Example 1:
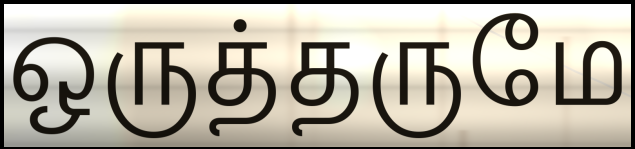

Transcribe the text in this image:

ஒருத்தருமே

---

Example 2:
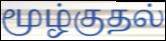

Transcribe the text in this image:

மூழ்குதல்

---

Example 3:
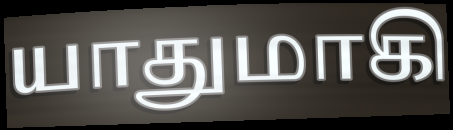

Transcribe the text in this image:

யாதுமாகி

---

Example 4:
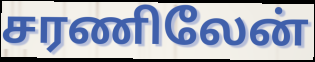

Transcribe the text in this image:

சரணிலேன்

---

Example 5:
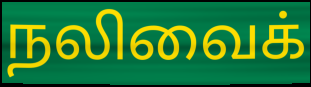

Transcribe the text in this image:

நலிவைக்